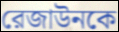
রেজাউনকে